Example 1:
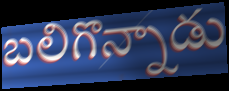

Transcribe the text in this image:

బలిగొన్నాడు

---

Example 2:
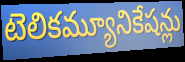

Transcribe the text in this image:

టెలికమ్యూనికేషన్లు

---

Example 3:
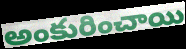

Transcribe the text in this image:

అంకురించాయి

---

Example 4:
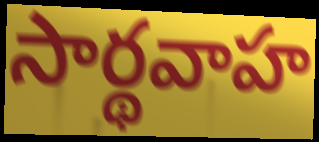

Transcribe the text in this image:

సార్థవాహ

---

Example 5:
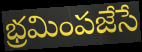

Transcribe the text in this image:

భ్రమింపజేసే